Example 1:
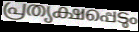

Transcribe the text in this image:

പ്രത്യക്ഷപ്പെടും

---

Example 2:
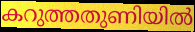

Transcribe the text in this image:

കറുത്തതുണിയിൽ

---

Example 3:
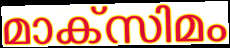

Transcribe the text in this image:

മാക്‌സിമം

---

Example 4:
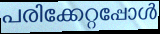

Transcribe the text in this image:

പരിക്കേറ്റപ്പോൾ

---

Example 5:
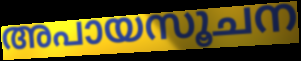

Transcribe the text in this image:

അപായസൂചന